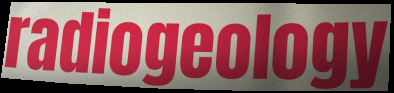
radiogeology